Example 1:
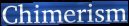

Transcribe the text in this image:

Chimerism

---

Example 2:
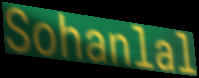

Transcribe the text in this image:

Sohanlal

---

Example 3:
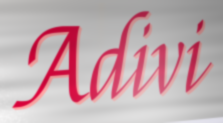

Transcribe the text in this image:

Adivi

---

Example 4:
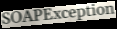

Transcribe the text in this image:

SOAPException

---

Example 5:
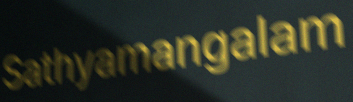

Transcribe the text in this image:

Sathyamangalam